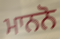
ਮਾਨਨੋ